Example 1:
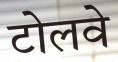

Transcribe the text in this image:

टोलवे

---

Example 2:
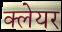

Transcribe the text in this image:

क्‍लेयर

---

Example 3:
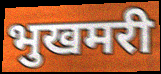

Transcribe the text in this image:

भुखमरी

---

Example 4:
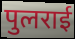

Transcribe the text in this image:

पुलराई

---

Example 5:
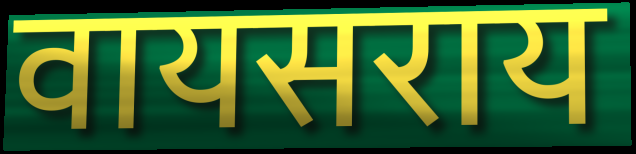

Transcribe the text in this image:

वायसराय